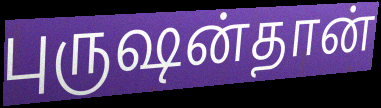
புருஷன்தான்